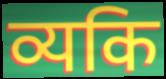
व्यकि